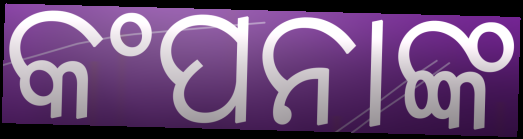
କଂପନାଙ୍କ